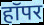
हॉपर